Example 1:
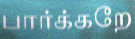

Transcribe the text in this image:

பார்க்கறே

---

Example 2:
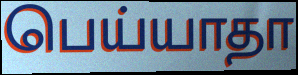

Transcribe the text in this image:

பெய்யாதா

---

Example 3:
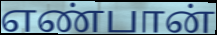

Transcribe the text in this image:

எண்பான்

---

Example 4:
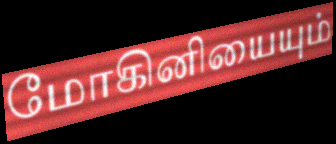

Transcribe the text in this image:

மோகினியையும்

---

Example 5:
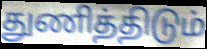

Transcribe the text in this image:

துணித்திடும்